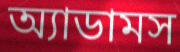
অ্যাডামস